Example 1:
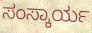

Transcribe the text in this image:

ಸಂಸ್ಕಾರ್ಯ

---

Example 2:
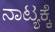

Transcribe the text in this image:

ನಾಟ್ಯಕ್ಕೆ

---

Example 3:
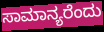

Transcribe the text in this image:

ಸಾಮಾನ್ಯರೆಂದು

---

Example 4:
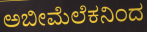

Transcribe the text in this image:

ಅಬೀಮೆಲೆಕನಿಂದ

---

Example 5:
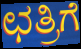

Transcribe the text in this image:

ಛತ್ರಿಗೆ